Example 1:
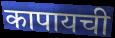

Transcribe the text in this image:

कापायची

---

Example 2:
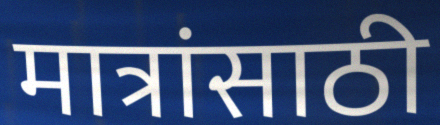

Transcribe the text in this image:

मात्रांसाठी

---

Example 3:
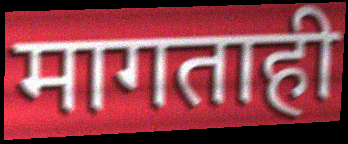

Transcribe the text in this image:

मागताही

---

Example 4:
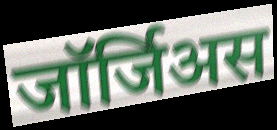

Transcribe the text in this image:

जॉर्जिअस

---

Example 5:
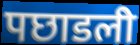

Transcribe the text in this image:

पछाडली